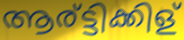
ആര്ട്ടിക്കിള്